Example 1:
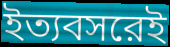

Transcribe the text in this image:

ইত্যবসরেই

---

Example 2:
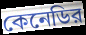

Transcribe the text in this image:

কেনেডির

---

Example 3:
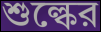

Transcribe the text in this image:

শুল্কের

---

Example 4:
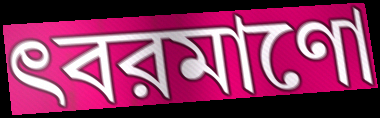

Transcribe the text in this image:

ৎবরমাণো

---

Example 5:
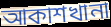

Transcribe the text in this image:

আকাশখানা